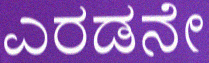
ಎರಡನೇ